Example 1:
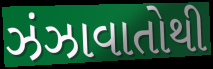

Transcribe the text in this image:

ઝંઝાવાતોથી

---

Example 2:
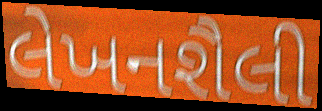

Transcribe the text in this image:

લેખનશૈલી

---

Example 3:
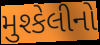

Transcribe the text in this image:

મુશ્કેલીનો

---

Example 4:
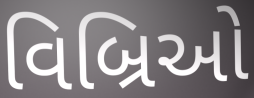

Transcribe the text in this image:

વિબ્રિઓ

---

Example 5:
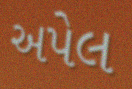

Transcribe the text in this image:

અપેલ